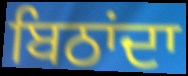
ਬਿਠਾਂਦਾ